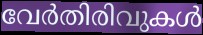
വേർതിരിവുകൾ